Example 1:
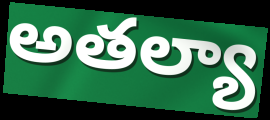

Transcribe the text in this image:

అతల్యా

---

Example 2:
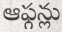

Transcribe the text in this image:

ఆఫ్గన్లు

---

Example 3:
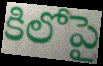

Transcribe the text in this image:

కిలోపై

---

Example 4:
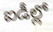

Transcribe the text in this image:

ఐడీల్లో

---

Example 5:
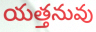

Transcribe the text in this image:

యత్తనువు